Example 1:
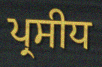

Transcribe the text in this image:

ਪ੍ਰਸੀਧ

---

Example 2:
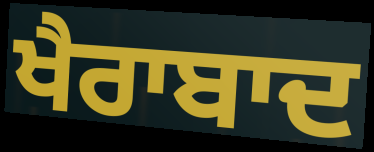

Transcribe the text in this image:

ਖੈਰਾਬਾਦ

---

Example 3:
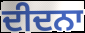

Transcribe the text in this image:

ਦੀਦਨਾ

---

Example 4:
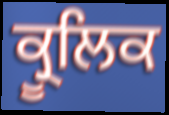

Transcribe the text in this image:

ਕ੍ਰੂਲਿਕ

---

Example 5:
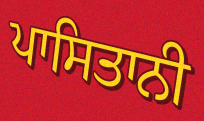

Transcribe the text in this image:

ਪਾਸਿਤਾਨੀ